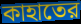
কাহাতের